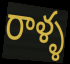
రాళ్ళ